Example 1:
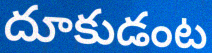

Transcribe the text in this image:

దూకుడంట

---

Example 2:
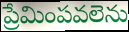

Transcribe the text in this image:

ప్రేమింపవలెను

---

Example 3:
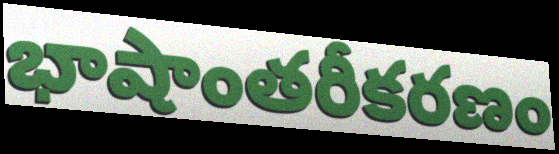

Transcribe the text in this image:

భాషాంతరీకరణం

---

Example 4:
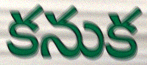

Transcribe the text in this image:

కనుక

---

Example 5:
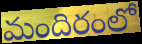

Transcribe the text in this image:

మందిరంలో